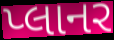
પ્લાનર